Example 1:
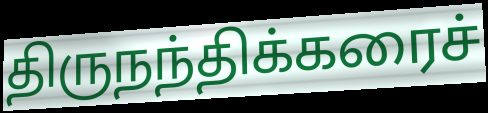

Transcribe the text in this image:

திருநந்திக்கரைச்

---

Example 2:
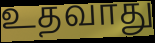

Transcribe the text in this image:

உதவாது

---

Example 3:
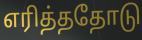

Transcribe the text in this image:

எரித்ததோடு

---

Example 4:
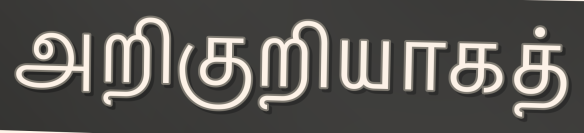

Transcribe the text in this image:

அறிகுறியாகத்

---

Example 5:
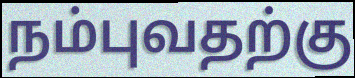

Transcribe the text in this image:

நம்புவதற்கு